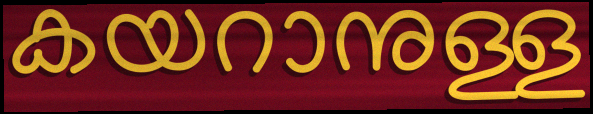
കയറാനുള്ള